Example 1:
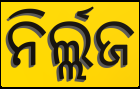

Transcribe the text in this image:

ନିର୍ଲ୍ଲଜ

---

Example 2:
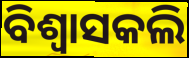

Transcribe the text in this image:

ବିଶ୍ଵାସକଲି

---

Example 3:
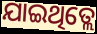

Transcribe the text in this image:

ଯାଇଥିତ୍ଲେ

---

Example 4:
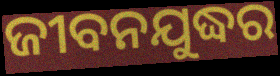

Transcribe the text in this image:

ଜୀବନଯୁଦ୍ଧର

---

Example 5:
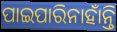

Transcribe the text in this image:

ପାଇପାରିନାହାଁନ୍ତି